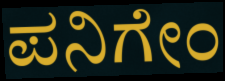
ಪನಿಗೇಂ